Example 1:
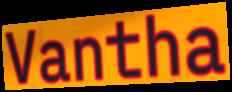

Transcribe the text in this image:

Vantha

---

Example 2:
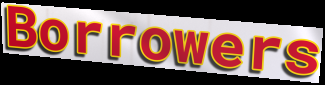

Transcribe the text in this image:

Borrowers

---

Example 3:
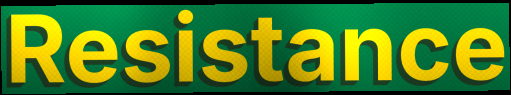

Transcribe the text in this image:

Resistance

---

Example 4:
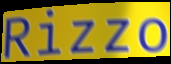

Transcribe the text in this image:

Rizzo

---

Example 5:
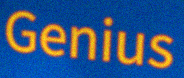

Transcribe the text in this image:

Genius